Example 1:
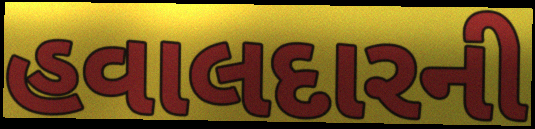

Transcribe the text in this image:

હવાલદારની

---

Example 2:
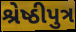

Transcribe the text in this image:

શ્રેષ્ઠીપુત્ર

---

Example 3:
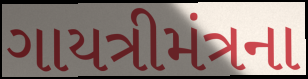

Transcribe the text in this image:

ગાયત્રીમંત્રના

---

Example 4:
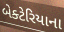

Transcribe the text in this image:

બેક્ટેરિયાના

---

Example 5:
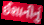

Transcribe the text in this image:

ઈશાનીનું